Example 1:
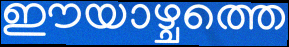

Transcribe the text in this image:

ഈയാഴ്ചത്തെ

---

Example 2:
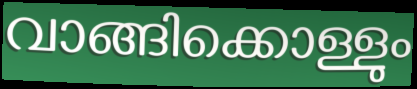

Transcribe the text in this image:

വാങ്ങിക്കൊള്ളും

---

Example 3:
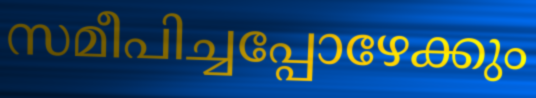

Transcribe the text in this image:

സമീപിച്ചപ്പോഴേക്കും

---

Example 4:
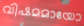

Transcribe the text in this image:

വിഷമമായോ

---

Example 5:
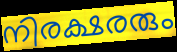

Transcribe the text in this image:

നിരക്ഷരരും